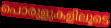
പൊരുളുകളിലൂടെ